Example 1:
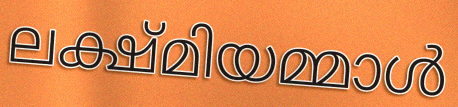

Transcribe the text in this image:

ലക്ഷ്മിയമ്മാൾ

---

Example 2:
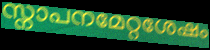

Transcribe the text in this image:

സ്നാപനമേറ്റശേഷം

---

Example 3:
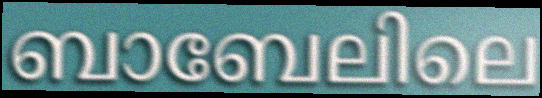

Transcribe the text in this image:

ബാബേലിലെ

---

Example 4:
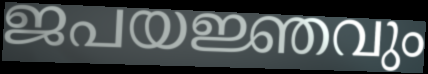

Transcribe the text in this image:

ജപയജ്ഞവും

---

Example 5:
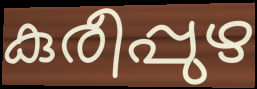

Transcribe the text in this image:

കുരീപ്പുഴ